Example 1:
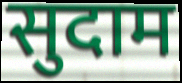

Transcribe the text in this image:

सुदाम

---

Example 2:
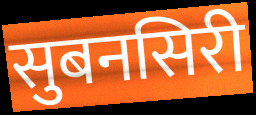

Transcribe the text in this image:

सुबनसिरी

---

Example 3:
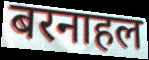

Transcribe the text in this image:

बरनाहल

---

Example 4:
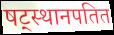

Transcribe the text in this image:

षट्स्थानपतित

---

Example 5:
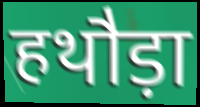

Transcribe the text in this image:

हथौड़ा